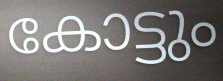
കോട്ടും